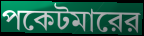
পকেটমারের